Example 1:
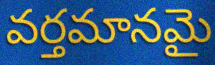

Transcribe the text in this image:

వర్తమానమై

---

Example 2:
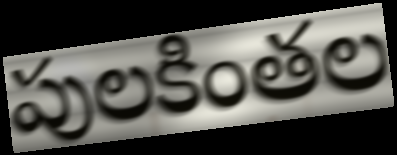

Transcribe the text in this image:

పులకింతల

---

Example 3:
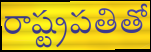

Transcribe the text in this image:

రాష్ట్రపతితో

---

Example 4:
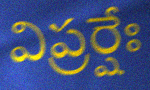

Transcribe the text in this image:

విప్రర్షేః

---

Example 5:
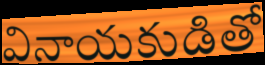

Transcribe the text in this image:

వినాయకుడితో